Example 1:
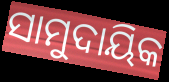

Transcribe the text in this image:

ସାମୁଦାୟିକ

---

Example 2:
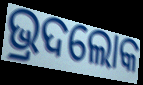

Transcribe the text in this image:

ଭ୍ରଦଲୋକ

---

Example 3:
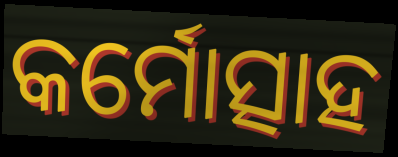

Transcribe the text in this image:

କର୍ମୋତ୍ସାହ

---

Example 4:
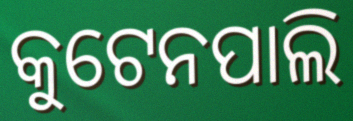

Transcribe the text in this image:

କୁଟେନପାଲି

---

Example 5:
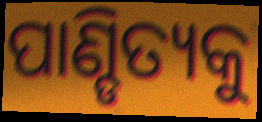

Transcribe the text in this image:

ପାଣ୍ଡିତ୍ୟକୁ